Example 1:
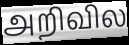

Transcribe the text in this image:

அறிவில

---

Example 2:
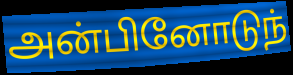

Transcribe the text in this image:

அன்பினோடுந்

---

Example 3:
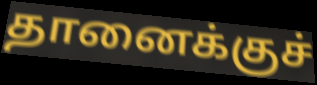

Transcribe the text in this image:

தானைக்குச்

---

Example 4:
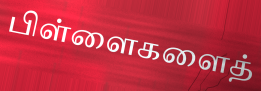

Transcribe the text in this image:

பிள்ளைகளைத்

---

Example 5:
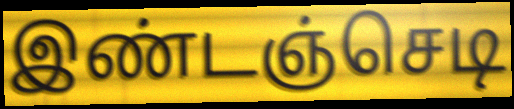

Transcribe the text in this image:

இண்டஞ்செடி